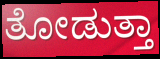
ತೋಡುತ್ತಾ